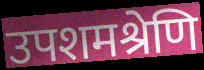
उपशमश्रेणि